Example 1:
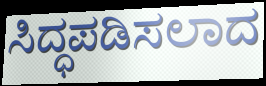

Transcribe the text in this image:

ಸಿದ್ಧಪಡಿಸಲಾದ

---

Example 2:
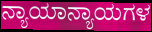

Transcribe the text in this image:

ನ್ಯಾಯಾನ್ಯಾಯಗಳ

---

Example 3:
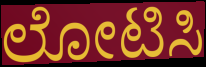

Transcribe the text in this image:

ಲೋಟಿಸಿ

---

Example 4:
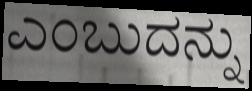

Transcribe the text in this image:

ಎಂಬುದನ್ನು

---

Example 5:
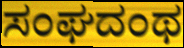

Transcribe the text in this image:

ಸಂಘದಂಥ